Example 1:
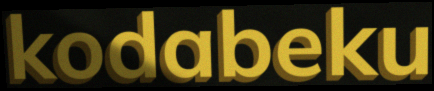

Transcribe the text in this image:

kodabeku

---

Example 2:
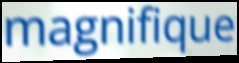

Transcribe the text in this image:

magnifique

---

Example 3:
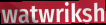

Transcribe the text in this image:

watwriksh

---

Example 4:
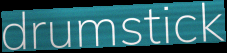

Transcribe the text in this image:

drumstick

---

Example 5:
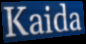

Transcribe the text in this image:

Kaida